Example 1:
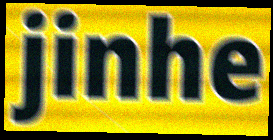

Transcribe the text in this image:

jinhe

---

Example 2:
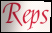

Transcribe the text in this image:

Reps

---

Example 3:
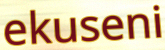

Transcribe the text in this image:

ekuseni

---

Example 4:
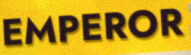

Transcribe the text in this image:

EMPEROR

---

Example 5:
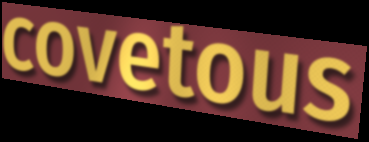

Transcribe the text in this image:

covetous